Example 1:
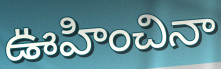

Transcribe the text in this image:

ఊహించినా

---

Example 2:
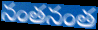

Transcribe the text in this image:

నంతనంత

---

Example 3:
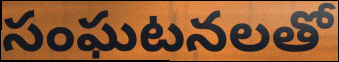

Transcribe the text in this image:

సంఘటనలతో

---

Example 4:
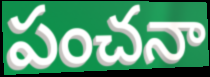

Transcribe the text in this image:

పంచనా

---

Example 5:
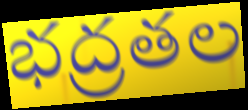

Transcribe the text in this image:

భద్రతల